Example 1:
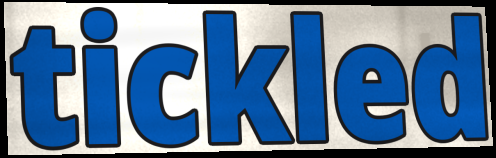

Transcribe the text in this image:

tickled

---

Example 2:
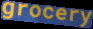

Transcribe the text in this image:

grocery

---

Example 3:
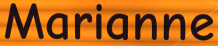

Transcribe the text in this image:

Marianne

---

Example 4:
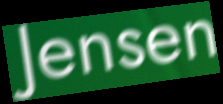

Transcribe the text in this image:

Jensen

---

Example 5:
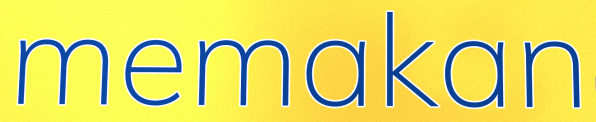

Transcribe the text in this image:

memakan